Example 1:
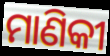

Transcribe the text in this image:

ମାଣିକୀ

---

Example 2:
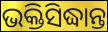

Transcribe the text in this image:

ଭକ୍ତିସିଦ୍ଧାନ୍ତ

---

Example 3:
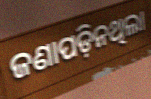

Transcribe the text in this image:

ଜଣାପଡ଼ିନଥିଲା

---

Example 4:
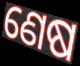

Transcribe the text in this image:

ଣେଷ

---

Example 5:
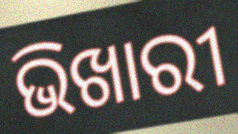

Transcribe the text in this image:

ଭିଖାରୀ